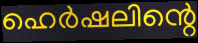
ഹെർഷലിന്റെ